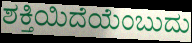
ಶಕ್ತಿಯಿದೆಯೆಂಬುದು